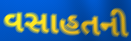
વસાહતની